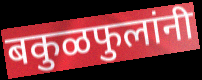
बकुळफुलांनी